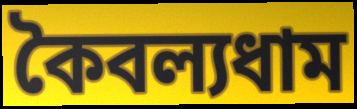
কৈবল্যধাম